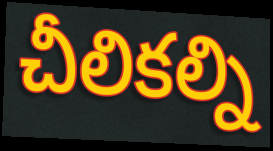
చీలికల్ని